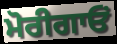
ਮੋਰੀਗਾਓਂ